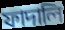
ফাদালি